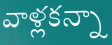
వాళ్లకన్నా